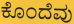
ಕೊಂದೆವು